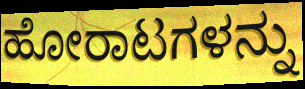
ಹೋರಾಟಗಳನ್ನು